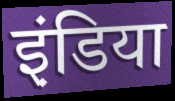
इ़ंडिया